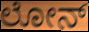
ಲೋನ್